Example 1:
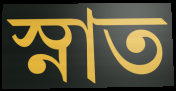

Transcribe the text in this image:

স্নাত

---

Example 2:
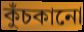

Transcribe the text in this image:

কুঁচকানো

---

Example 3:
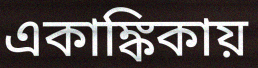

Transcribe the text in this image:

একাঙ্কিকায়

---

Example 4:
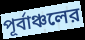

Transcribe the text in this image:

পূর্বাঞ্চলের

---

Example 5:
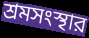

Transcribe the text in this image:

শ্রমসংস্থার